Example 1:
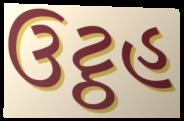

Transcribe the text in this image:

ઉટ્ઠહ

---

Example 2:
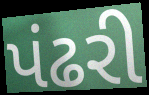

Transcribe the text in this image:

પંઢરી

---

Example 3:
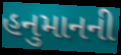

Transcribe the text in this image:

હનુમાનની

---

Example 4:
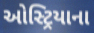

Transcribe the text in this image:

ઓસ્ટ્રિયાના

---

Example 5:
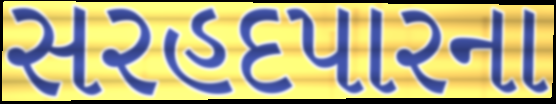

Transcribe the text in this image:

સરહદપારના